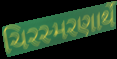
ચિરસ્મરણાર્થે